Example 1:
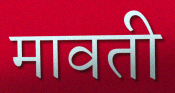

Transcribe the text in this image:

मावती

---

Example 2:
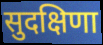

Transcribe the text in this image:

सुदक्षिणा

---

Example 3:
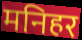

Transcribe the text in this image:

मनिहर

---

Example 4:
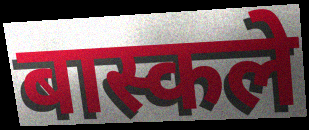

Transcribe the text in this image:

बास्कले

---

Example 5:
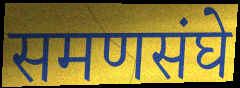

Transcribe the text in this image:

समणसंघे